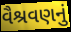
વૈશ્રવણનું